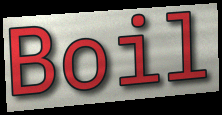
Boil